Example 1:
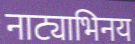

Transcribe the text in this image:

नाट्याभिनय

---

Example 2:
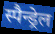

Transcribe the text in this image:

स्पैन्ड्रेल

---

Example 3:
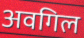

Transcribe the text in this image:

अवगिल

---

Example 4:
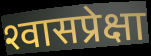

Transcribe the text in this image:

श्वासप्रेक्षा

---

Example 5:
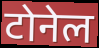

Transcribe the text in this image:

टोनेल